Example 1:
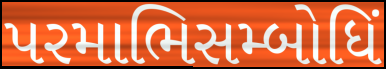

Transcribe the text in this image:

પરમાભિસમ્બોધિં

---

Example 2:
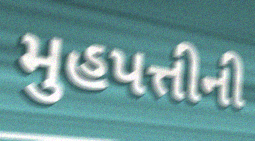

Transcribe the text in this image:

મુહપત્તીની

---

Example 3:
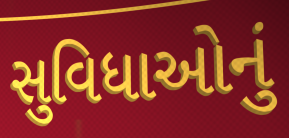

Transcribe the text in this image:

સુવિધાઓનું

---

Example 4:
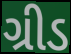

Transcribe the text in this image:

ગ્રીડ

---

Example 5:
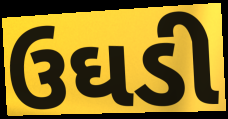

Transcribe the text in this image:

ઉઘડી